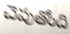
చెపుతోంది